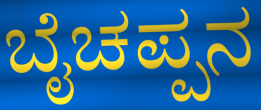
ಬೈಚಪ್ಪನ